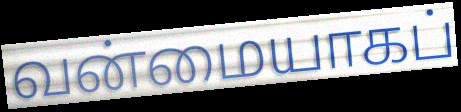
வன்மையாகப்